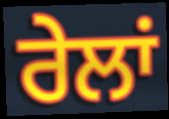
ਰੇਲਾਂ